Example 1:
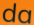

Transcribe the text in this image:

da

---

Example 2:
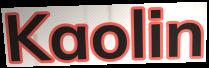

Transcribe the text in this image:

Kaolin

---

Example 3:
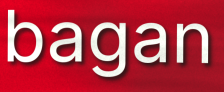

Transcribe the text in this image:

bagan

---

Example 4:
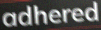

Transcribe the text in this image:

adhered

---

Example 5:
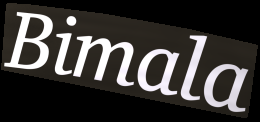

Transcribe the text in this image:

Bimala